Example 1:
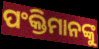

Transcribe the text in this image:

ପଂକ୍ତିମାନଙ୍କୁ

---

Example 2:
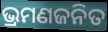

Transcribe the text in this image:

ଭ୍ରମଣଜନିତ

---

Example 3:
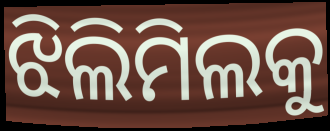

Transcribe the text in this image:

ଝିଲିମିଲକୁ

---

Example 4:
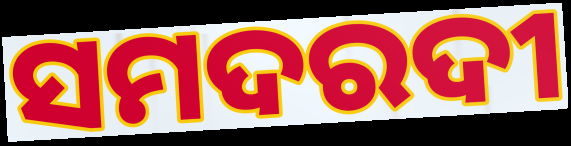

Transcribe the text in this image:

ସମଦରଦୀ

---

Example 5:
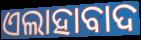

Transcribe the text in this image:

ଏଲାହାବାଦ